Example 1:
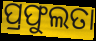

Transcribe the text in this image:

ପ୍ରଫୁଲତା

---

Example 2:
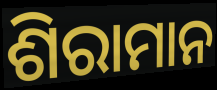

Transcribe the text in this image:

ଶିରାମାନ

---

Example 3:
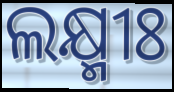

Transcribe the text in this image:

ଲକ୍ଷ୍ମୀଃ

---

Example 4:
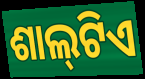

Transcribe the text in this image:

ଶାଲ୍‌ଟିଏ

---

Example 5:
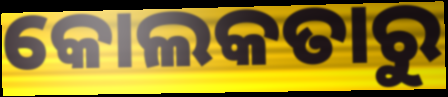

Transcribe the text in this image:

କୋଲକତାରୁ